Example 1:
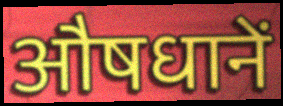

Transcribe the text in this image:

औषधानें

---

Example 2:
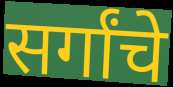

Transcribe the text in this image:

सर्गांचे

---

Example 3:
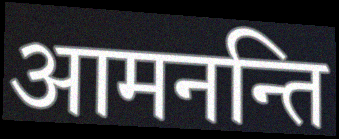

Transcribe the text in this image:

आमनन्ति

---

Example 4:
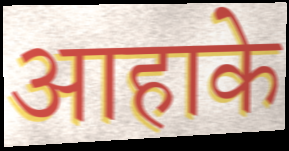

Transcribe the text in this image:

आहाके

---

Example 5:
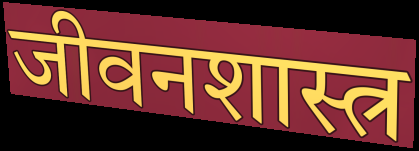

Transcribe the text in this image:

जीवनशास्त्र